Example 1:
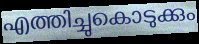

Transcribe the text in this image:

എത്തിച്ചുകൊടുക്കും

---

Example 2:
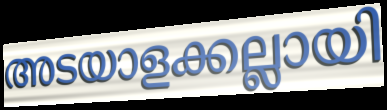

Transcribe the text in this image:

അടയാളക്കല്ലായി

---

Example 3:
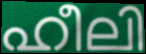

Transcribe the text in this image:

ഹീലി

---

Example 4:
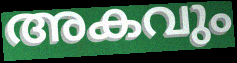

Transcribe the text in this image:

അകവും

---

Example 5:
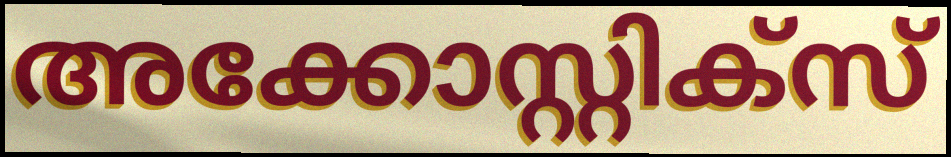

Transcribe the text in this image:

അക്കോസ്റ്റിക്സ്